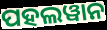
ପହଲୱାନ